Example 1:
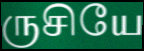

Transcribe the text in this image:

ருசியே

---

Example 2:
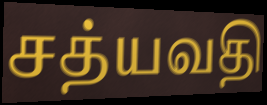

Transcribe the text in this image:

சத்யவதி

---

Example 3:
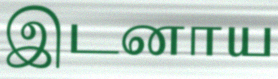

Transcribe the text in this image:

இடனாய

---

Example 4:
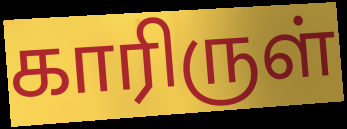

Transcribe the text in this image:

காரிருள்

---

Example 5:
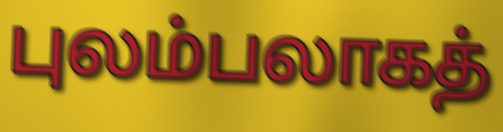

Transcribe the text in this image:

புலம்பலாகத்